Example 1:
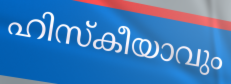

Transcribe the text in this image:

ഹിസ്കീയാവും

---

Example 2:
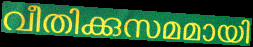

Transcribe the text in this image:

വീതിക്കുസമമായി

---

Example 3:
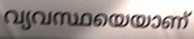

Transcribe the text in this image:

വ്യവസ്ഥയെയാണ്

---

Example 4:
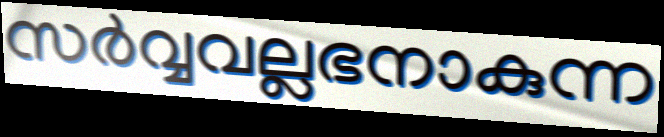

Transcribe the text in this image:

സർവ്വവല്ലഭനാകുന്ന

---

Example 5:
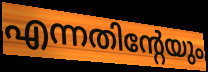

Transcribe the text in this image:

എന്നതിന്റേയും